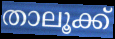
താലൂക്ക്